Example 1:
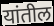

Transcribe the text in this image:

यांतील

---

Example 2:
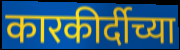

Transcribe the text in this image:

कारकीर्दीच्या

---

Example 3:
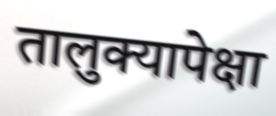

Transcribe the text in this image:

तालुक्यापेक्षा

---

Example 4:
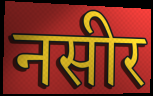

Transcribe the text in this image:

नसीर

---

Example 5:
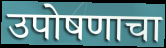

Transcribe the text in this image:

उपोषणाचा